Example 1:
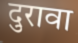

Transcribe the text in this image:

दुरावा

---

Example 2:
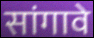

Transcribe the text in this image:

सांगावे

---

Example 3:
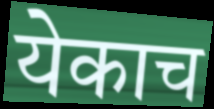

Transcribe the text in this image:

येकाच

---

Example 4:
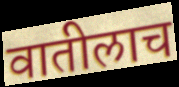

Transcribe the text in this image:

वातीलाच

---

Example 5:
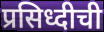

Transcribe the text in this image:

प्रसिध्दीची